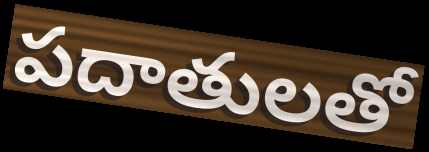
పదాతులతో